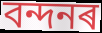
বন্দনৰ